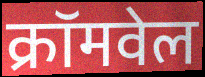
क्रॉमवेल